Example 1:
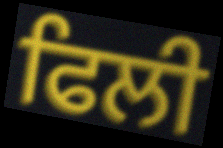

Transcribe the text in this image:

ਫਿਲੀ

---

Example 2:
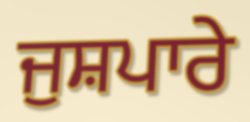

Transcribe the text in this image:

ਜੁਸ਼ਪਾਰੇ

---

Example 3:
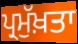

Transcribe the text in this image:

ਪ੍ਰਮੁੱਖ਼ਤਾ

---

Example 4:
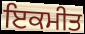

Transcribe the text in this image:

ਇਕਮੀਤ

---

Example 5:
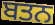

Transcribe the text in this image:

ਬਤਨ